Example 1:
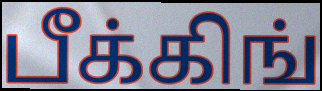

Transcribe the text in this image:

பீக்கிங்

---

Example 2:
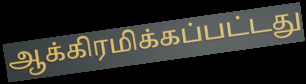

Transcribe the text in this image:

ஆக்கிரமிக்கப்பட்டது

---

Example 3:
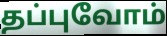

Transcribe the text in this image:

தப்புவோம்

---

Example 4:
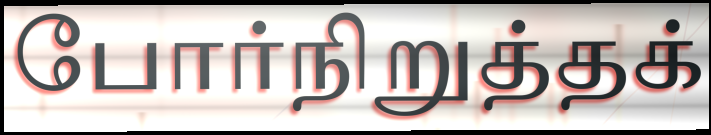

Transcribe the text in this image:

போர்நிறுத்தக்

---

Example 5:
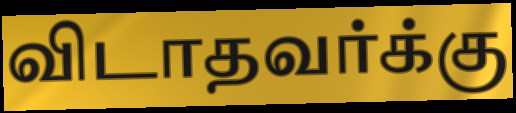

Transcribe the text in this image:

விடாதவர்க்கு